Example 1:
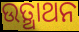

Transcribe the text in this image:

ଉତ୍ଥାଥନ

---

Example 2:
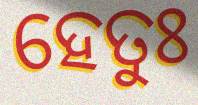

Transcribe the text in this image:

ହେତୁଃ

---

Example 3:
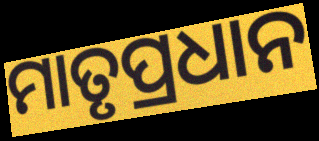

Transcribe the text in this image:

ମାତୃପ୍ରଧାନ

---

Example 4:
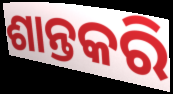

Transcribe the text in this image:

ଶାନ୍ତକରି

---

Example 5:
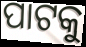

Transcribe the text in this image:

ପାଟକୁ